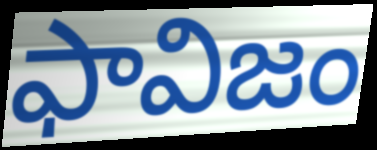
ఫావిజం